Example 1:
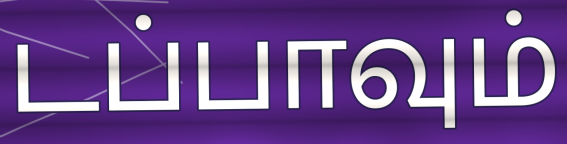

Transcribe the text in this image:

டப்பாவும்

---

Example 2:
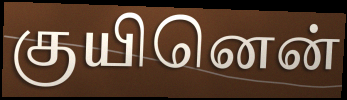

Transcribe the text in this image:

குயினென்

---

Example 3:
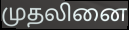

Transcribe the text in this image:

முதலினை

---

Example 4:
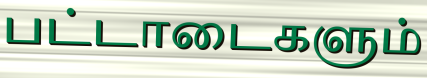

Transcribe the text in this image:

பட்டாடைகளும்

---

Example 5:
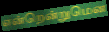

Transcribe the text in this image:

என்றென்றுமென